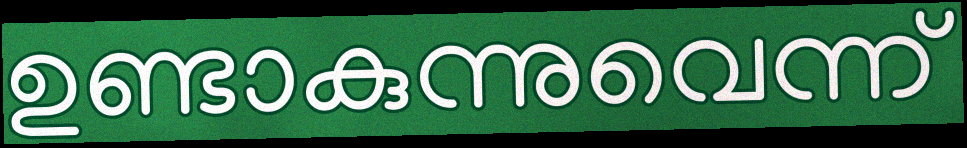
ഉണ്ടാകുന്നുവെന്ന്